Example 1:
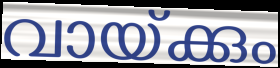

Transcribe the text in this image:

വായ്‌ക്കും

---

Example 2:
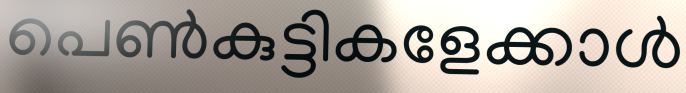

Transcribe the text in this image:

പെൺകുട്ടികളേക്കാൾ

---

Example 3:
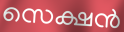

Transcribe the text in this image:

സെക്ഷൻ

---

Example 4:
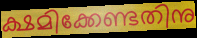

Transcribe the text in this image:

ക്ഷമിക്കേണ്ടതിനു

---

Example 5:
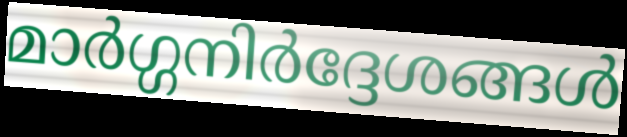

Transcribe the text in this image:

മാർഗ്ഗനിർദ്ദേശങ്ങൾ